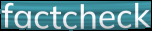
factcheck